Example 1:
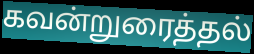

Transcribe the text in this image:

கவன்றுரைத்தல்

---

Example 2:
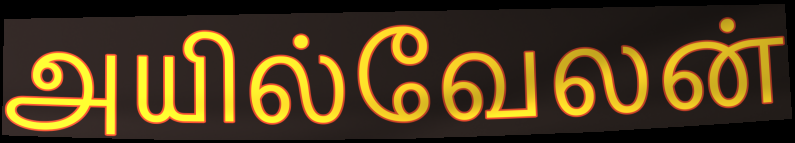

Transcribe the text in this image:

அயில்வேலன்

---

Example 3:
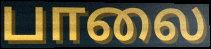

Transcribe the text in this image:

பாலை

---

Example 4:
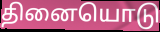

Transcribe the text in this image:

தினையொடு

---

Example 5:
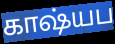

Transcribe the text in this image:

காஷ்யப